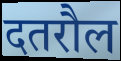
दतरौल